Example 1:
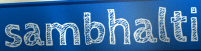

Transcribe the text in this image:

sambhalti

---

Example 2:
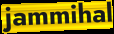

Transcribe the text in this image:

jammihal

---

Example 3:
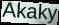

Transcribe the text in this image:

Akaky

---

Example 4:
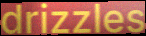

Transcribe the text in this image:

drizzles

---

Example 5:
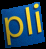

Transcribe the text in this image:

pli